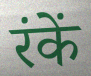
रंकें